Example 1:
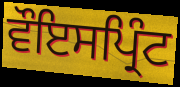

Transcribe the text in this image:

ਵੌਇਸਪ੍ਰਿੰਟ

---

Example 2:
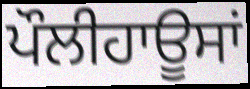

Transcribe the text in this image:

ਪੌਲੀਹਾਊਸਾਂ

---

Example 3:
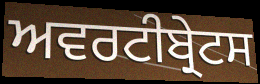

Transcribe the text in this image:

ਅਵਰਟੀਬ੍ਰੇਟਸ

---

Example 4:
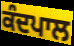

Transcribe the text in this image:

ਕੰਦਪਾਲ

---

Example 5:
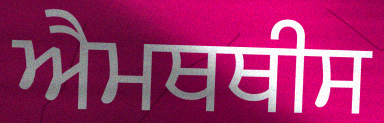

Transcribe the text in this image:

ਐਮਥਥੀਸ